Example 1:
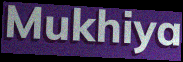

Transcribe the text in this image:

Mukhiya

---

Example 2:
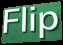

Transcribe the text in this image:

Flip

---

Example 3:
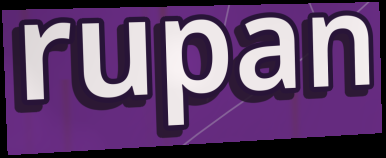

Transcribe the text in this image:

rupan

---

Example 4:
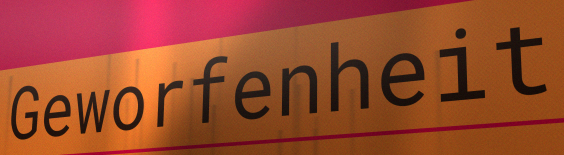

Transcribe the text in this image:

Geworfenheit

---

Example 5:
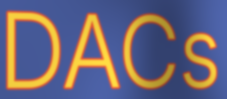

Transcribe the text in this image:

DACs